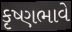
કૃષ્ણભાવે